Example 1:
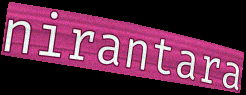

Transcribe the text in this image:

nirantara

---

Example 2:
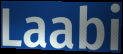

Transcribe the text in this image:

Laabi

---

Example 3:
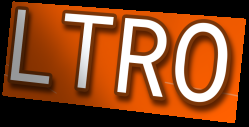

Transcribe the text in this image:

LTRO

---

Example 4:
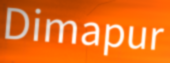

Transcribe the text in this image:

Dimapur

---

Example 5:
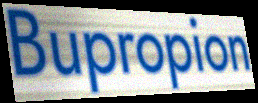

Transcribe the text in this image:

Bupropion